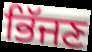
ਭਿੱਜਣ